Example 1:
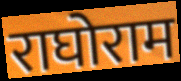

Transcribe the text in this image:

राघोराम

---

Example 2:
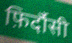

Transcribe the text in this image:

फ़िर्दौसी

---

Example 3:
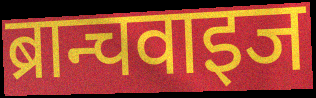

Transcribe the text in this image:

ब्रान्चवाइज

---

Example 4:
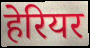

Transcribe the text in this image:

हेरियर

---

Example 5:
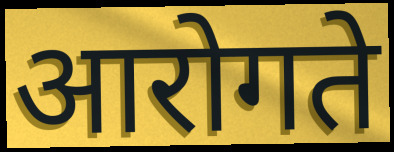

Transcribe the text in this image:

आरोगते